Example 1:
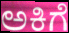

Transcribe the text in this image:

ಅಕಿಗೆ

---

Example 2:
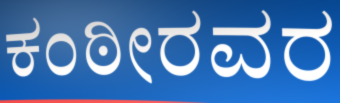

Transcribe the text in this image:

ಕಂಠೀರವರ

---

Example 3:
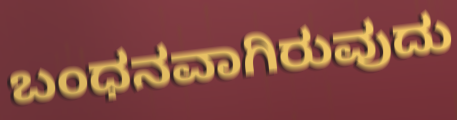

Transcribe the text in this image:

ಬಂಧನವಾಗಿರುವುದು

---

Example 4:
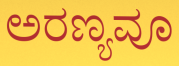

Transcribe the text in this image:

ಅರಣ್ಯವೂ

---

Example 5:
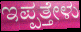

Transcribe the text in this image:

ಇಪ್ಪತ್ತೇಳು